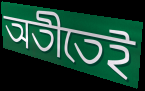
অতীতেই